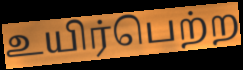
உயிர்பெற்ற